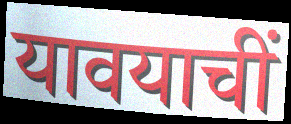
यावयाचीं